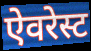
ऐवरेस्ट